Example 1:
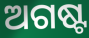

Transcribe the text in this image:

ଅଗଷ୍ଟ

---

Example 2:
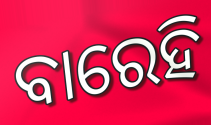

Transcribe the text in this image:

ବାରେହି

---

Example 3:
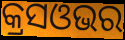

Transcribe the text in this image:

କ୍ରସଓଭର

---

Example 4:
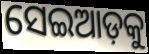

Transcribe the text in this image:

ସେଇଆଡ଼କୁ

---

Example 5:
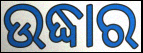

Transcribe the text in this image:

ଉଦ୍ଧାର